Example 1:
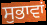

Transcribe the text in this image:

ਸੁਭਾਵਾਂ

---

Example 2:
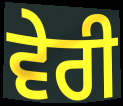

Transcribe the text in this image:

ਵੇਰੀ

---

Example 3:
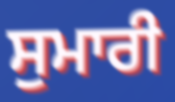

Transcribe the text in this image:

ਸੁਮਾਰੀ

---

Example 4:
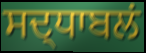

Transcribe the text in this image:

ਸਦ੍ਧਾਬਲਂ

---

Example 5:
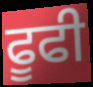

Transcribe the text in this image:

ਫੂਫੀ